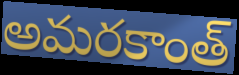
అమరకాంత్